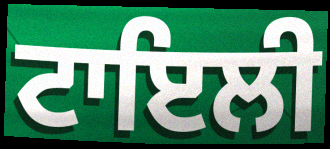
ਟਾਇਲੀ